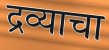
द्रव्याचा